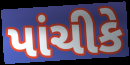
પાંચીકે